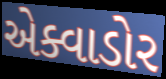
એક્વાડોર